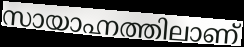
സായാഹ്നത്തിലാണ്